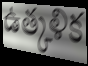
ఉత్కళిక